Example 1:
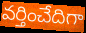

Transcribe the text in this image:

వర్తించేదిగా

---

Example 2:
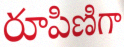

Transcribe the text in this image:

రూపిణిగా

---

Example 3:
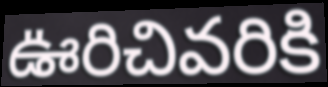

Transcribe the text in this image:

ఊరిచివరికి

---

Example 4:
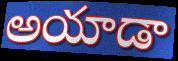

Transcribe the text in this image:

అయాడా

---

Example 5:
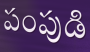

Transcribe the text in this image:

పంపుడి